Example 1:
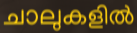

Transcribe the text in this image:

ചാലുകളിൽ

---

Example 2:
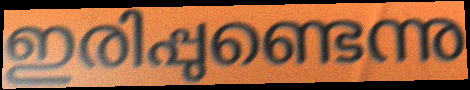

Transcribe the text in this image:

ഇരിപ്പുണ്ടെന്നു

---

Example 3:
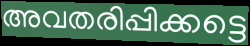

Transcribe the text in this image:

അവതരിപ്പിക്കട്ടെ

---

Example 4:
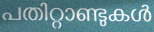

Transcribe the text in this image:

പതിറ്റാണ്ടുകൾ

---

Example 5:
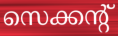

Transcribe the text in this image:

സെക്കന്റ്